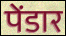
पेंडार